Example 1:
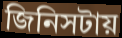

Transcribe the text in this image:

জিনিসটায়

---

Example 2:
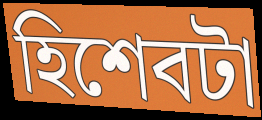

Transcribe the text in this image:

হিশেবটা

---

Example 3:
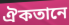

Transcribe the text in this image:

ঐকতানে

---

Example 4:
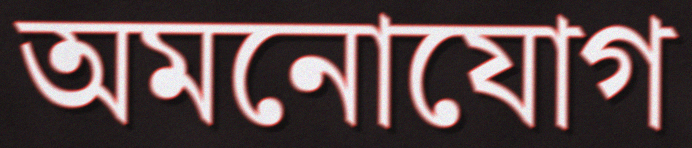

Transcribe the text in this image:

অমনোযোগ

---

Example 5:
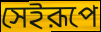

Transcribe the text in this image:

সেইরূপে